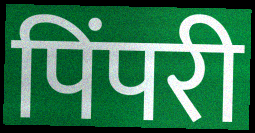
पिंपरी